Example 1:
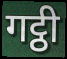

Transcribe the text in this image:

गट्ठी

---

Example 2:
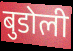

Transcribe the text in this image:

बुडोली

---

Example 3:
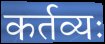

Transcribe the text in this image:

कर्तव्यः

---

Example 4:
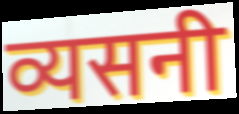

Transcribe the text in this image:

व्यसनी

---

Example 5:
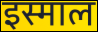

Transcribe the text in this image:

इस्माल